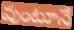
వుంటూనే